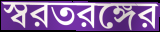
স্বরতরঙ্গের